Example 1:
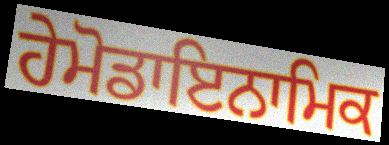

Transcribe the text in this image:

ਹੇਮੋਡਾਇਨਾਮਿਕ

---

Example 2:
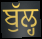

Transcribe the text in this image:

ਬੁੱਲ੍ਹ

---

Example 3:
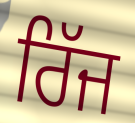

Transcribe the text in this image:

ਰਿੱਜ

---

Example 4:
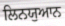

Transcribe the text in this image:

ਲਿਨਯੁਆਨ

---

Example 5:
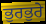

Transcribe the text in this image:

ਭੁਰਭੁਰੇ